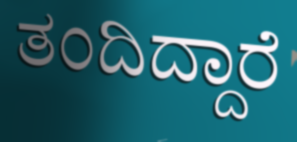
ತಂದಿದ್ದಾರೆ